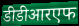
डीडीआरएफ